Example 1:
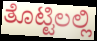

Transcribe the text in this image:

ತೊಟ್ಟಿಲಲ್ಲಿ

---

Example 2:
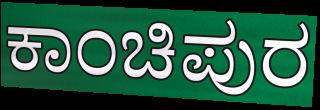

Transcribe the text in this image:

ಕಾಂಚಿಪುರ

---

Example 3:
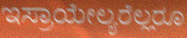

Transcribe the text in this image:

ಇಸ್ರಾಯೇಲ್ಯರೆಲ್ಲರೂ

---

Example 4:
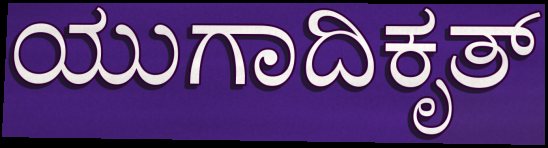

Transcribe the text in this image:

ಯುಗಾದಿಕೃತ್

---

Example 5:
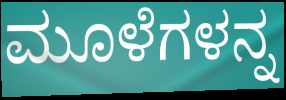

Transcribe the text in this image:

ಮೂಳೆಗಳನ್ನ